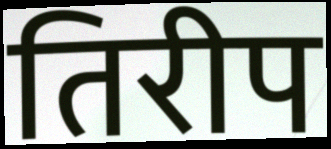
तिरीप